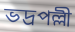
ভদ্রপল্লী